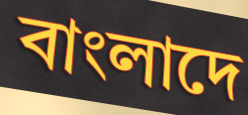
বাংলাদে